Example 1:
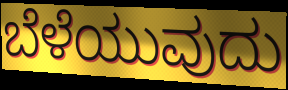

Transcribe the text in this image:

ಬೆಳೆಯುವುದು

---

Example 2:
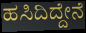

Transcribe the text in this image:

ಹಸಿದಿದ್ದೇನೆ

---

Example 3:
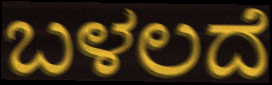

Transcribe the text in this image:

ಬಳಲದೆ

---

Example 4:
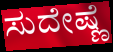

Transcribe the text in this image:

ಸುದೇಷ್ಣೆ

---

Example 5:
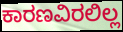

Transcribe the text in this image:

ಕಾರಣವಿರಲಿಲ್ಲ